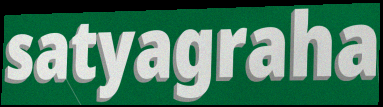
satyagraha